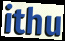
ithu